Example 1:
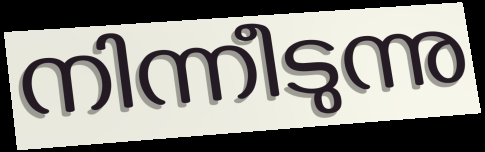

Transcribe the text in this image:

നിന്നീടുന്നു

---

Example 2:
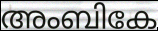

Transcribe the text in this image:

അംബികേ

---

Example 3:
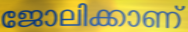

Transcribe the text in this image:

ജോലിക്കാണ്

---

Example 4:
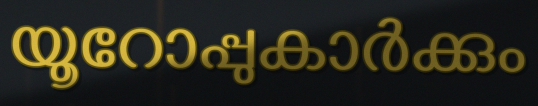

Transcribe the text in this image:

യൂറോപ്പുകാർക്കും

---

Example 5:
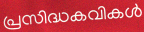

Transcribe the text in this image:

പ്രസിദ്ധകവികൾ